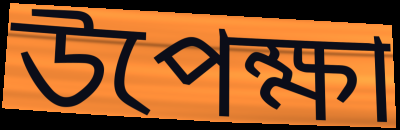
উপেক্ষা